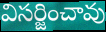
విసర్జించావు